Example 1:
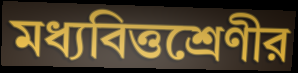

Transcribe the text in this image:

মধ্যবিত্তশ্রেণীর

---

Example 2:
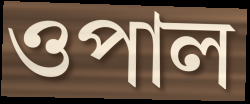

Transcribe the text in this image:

ওপাল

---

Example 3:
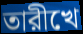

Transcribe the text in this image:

তারীখে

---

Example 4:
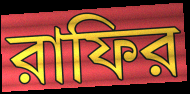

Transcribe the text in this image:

রাফির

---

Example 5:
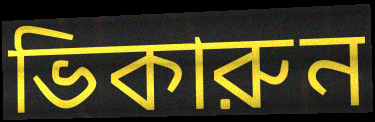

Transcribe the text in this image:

ভিকারুন